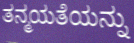
ತನ್ಮಯತೆಯನ್ನು